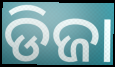
ଡିଜା